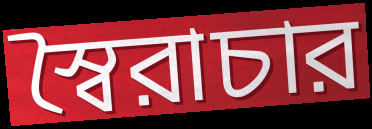
স্বৈরাচার